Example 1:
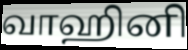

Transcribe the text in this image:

வாஹினி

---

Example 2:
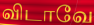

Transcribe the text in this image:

விடாவே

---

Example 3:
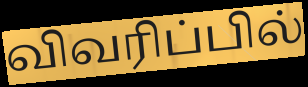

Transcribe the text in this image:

விவரிப்பில்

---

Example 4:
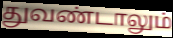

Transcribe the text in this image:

துவண்டாலும்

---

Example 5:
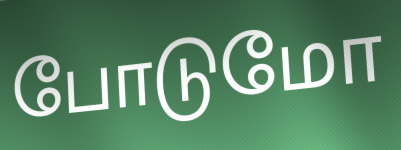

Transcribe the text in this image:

போடுமோ